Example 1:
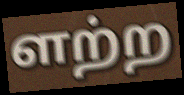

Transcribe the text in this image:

ளற்ற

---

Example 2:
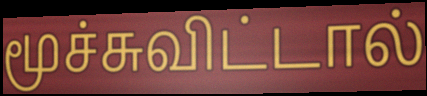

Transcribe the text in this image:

மூச்சுவிட்டால்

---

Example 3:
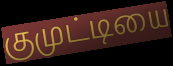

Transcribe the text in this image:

குமுட்டியை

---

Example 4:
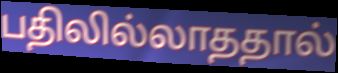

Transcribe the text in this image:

பதிலில்லாததால்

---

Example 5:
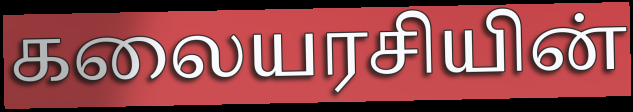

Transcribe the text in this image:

கலையரசியின்